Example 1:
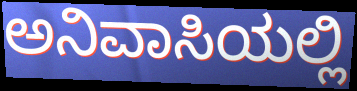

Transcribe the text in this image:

ಅನಿವಾಸಿಯಲ್ಲಿ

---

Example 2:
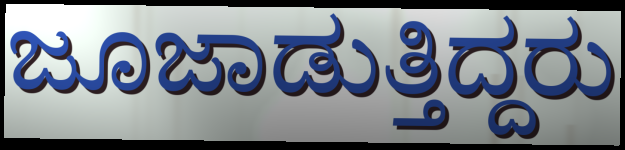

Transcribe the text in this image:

ಜೂಜಾಡುತ್ತಿದ್ದರು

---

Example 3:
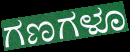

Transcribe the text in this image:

ಗಣಗಳೂ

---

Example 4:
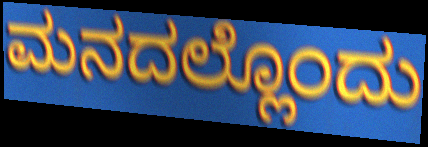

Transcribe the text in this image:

ಮನದಲ್ಲೊಂದು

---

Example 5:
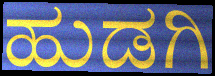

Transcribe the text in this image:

ಹುಡಗಿ